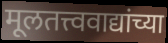
मूलतत्त्ववाद्यांच्या